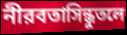
নীরবতাসিন্ধুতলে